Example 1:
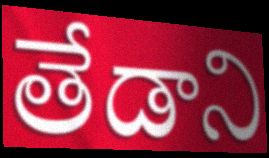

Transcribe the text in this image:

తేడాని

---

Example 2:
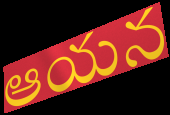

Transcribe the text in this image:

ఆయన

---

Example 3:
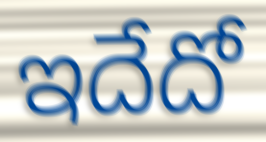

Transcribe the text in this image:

ఇదేదో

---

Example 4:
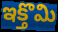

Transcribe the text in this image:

ఇక్తొమి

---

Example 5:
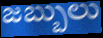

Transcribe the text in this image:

జబ్బులు